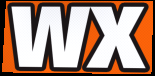
wx